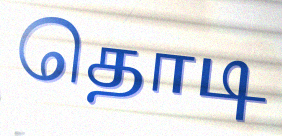
தொடி